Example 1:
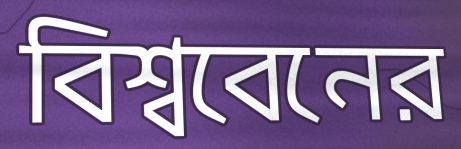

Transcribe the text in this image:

বিশ্ববেনের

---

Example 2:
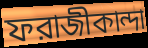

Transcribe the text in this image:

ফরাজীকান্দা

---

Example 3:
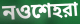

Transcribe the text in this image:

নওশেহরা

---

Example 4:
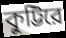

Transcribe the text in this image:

কুট্টিরে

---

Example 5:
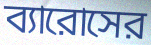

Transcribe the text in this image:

ব্যারোসের